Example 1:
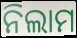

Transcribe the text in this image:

ନିଲାମ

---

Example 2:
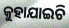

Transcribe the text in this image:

କୁହାଯାଇଚି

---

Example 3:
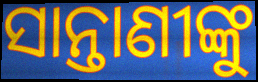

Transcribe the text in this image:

ସାନ୍ତାଣୀଙ୍କୁ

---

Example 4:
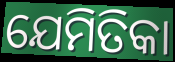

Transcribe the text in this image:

ଯେମିତିକା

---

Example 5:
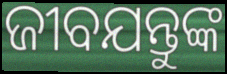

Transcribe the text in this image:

ଜୀବଯନ୍ତୁଙ୍କ